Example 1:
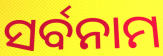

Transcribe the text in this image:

ସର୍ବନାମ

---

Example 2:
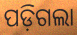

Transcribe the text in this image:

ପଡ଼ିଗଲା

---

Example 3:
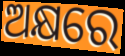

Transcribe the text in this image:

ଅକ୍ଷରେ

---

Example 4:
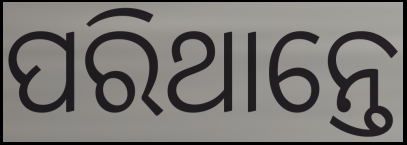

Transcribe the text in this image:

ପରିଥାନ୍ତେ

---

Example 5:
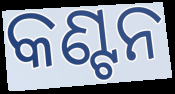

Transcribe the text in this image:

କଣ୍ଟନ